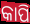
କାପି